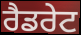
ਰੈਡਰੇਟ